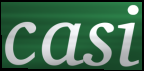
casi